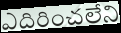
ఎదిరించలేని